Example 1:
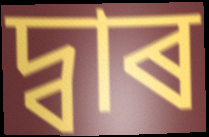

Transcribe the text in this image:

দ্বাৰ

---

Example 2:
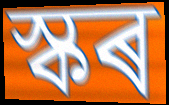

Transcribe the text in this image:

স্কৰ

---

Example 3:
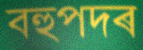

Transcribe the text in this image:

বহুপদৰ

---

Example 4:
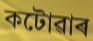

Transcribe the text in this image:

কটোৱাৰ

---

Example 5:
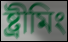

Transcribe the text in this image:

ষ্ট্ৰীমিং